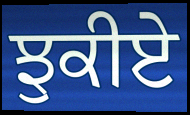
ਝੁਕੀਏ